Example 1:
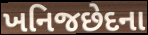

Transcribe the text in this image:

ખનિજછેદના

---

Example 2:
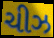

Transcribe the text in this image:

ચીઝ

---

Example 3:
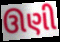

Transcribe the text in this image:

ઊણી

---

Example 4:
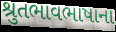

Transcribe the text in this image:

શ્રુતભાવભાષાના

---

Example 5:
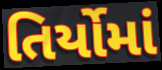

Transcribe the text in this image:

તિર્યોમાં